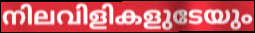
നിലവിളികളുടേയും